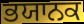
ਭਯਾਨਕ